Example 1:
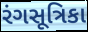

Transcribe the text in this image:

રંગસૂત્રિકા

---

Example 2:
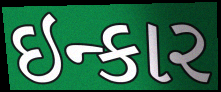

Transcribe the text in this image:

ઇન્કાર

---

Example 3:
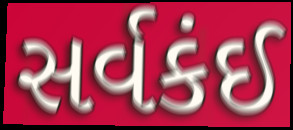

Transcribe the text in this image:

સર્વકંઈ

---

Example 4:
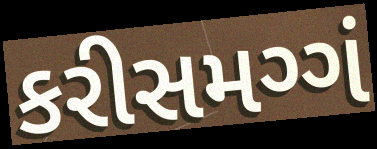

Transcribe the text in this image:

કરીસમગ્ગં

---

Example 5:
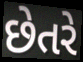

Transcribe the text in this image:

છેતરે